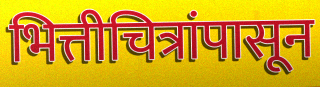
भित्तीचित्रांपासून